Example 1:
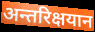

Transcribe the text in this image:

अन्तरिक्षयान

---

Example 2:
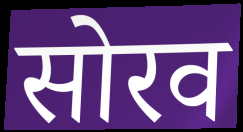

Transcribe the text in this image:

सोरव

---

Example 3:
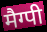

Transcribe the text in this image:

मैग्पी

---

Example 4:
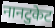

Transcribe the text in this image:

नानटुकेट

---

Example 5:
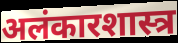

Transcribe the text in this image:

अलंकारशास्त्र